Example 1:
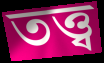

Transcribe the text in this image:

তত্ত্ব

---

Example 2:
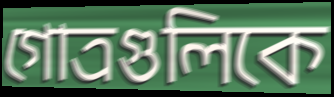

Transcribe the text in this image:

গোত্রগুলিকে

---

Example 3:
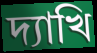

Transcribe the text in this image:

দ্যাখি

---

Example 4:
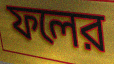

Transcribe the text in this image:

ফলের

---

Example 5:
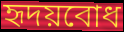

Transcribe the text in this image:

হৃদয়বোধ